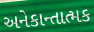
અનેકાન્તાત્મક